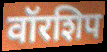
वॉरशिप